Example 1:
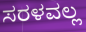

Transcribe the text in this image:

ಸರಳವಲ್ಲ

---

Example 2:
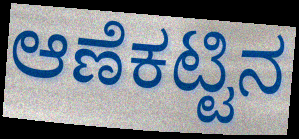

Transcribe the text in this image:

ಆಣೆಕಟ್ಟಿನ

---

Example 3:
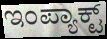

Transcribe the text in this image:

ಇಂಪ್ಯಾಕ್ಟ್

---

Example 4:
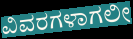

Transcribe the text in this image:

ವಿವರಗಳಾಗಲೀ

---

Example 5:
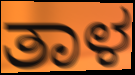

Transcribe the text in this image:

ತಾಳ